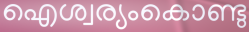
ഐശ്വര്യംകൊണ്ടു